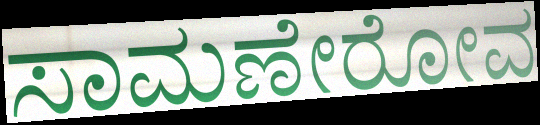
ಸಾಮಣೇರೋವ